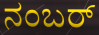
ನಂಬರ್